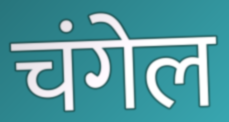
चंगेल